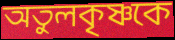
অতুলকৃষ্ণকে